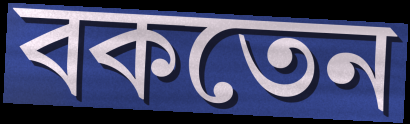
বকতেন